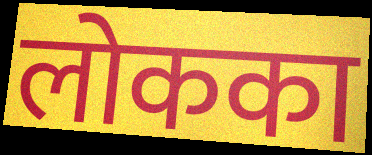
लोकका